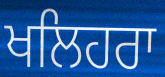
ਖਲਿਹਰਾ